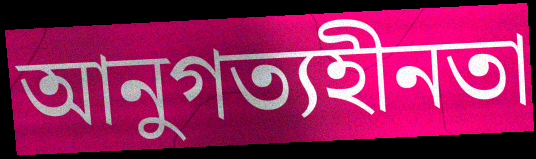
আনুগত্যহীনতা